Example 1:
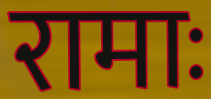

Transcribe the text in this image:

रामाः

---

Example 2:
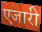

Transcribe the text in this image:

एजारी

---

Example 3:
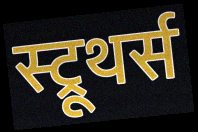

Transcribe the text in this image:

स्ट्रूथर्स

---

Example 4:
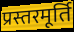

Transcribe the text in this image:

प्रस्तरमूर्ति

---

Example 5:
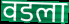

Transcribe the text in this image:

वडला